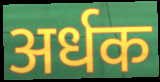
अर्धक